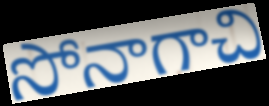
సోనాగాచి